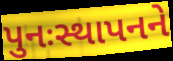
પુનઃસ્થાપનને